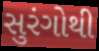
સુરંગોથી